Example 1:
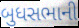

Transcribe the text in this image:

બુધસભાની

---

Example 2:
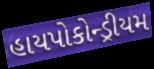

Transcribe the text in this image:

હાયપોકોન્ડ્રીયમ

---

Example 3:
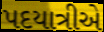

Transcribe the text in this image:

પદયાત્રીએ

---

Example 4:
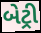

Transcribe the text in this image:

બેટ્રી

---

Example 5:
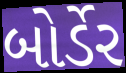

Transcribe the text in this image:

બોર્ડેર